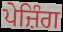
ਪੇਜ਼ਿੰਗ